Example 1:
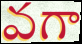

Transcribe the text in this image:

వగా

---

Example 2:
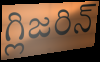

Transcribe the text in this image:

గ్లిజరిన్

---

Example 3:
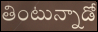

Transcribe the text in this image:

తింటున్నాడో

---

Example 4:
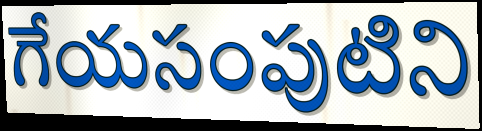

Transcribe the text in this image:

గేయసంపుటిని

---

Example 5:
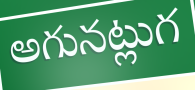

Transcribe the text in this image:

అగునట్లుగ